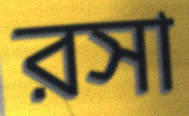
রসা